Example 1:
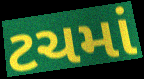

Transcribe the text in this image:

ટચમાં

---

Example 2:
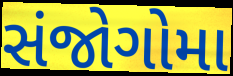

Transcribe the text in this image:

સંજોગોમા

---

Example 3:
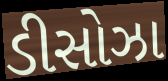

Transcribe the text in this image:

ડીસોઝા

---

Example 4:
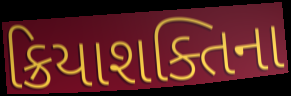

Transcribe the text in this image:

ક્રિયાશક્તિના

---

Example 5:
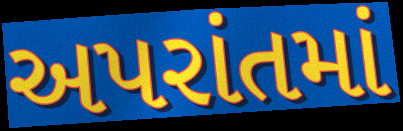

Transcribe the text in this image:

અપરાંતમાં